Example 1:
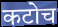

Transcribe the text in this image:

कटोच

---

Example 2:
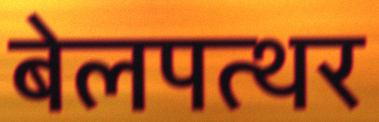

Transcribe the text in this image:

बेलपत्थर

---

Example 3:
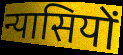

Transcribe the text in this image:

न्यासियों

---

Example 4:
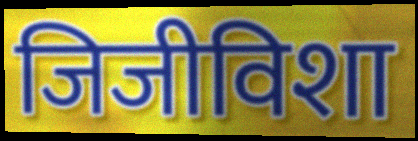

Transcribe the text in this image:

जिजीविशा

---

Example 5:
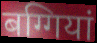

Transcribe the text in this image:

बग्गियां